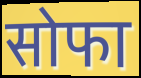
सोफा